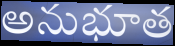
అనుభూత